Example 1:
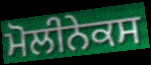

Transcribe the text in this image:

ਮੋਲੀਨੇਕਸ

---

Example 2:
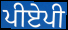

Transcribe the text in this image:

ਪੀਏਪੀ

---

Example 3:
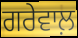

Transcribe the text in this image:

ਗਰੇਵਾਲ਼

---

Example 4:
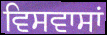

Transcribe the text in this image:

ਵਿਸਵਾਸਾਂ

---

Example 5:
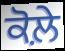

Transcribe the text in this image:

ਕੋਲ਼ੇ